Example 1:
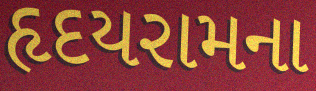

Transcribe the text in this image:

હૃદયરામના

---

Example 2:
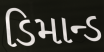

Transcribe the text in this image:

ડિમાન્ડ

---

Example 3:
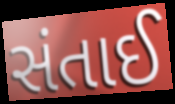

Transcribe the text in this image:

સંતાઈ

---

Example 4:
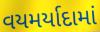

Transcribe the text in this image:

વયમર્યાદામાં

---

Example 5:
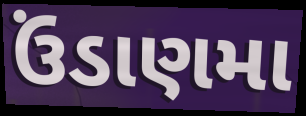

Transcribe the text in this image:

ઉંડાણમા